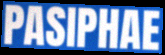
PASIPHAE